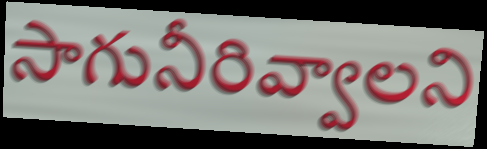
సాగునీరివ్వాలని